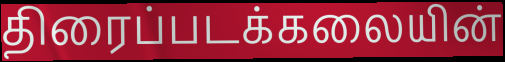
திரைப்படக்கலையின்